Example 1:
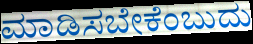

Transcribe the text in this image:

ಮಾಡಿಸಬೇಕೆಂಬುದು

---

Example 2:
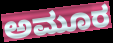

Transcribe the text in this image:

ಅಮೂರ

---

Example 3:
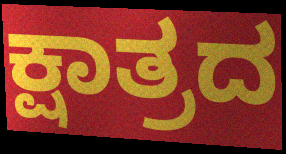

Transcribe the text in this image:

ಕ್ಷಾತ್ರದ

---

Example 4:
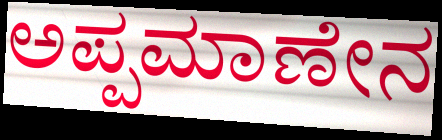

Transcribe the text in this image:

ಅಪ್ಪಮಾಣೇನ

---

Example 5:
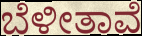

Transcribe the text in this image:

ಬೆಳೀತಾವೆ